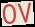
OV